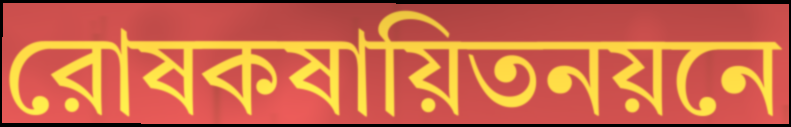
রোষকষায়িতনয়নে